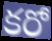
కరో